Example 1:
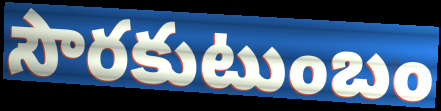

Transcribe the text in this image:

సౌరకుటుంబం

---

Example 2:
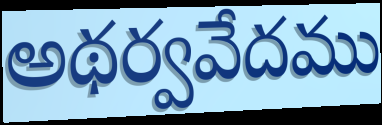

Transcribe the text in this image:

అథర్వవేదము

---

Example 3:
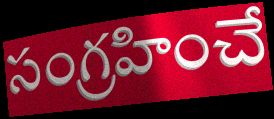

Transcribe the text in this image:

సంగ్రహించే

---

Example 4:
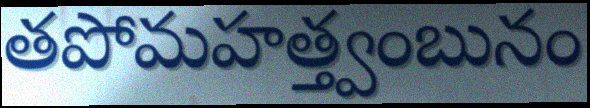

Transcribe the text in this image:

తపోమహత్త్వంబునం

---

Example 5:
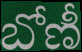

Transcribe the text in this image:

బోణీ